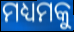
ମଧ୍ୟମକୁ